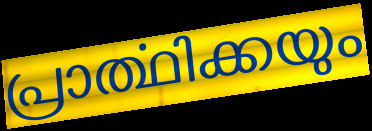
പ്രാൎത്ഥിക്കയും